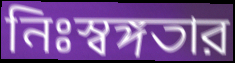
নিঃস্বঙ্গতার